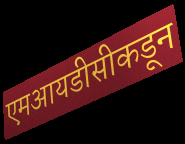
एमआयडीसीकडून